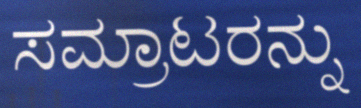
ಸಮ್ರಾಟರನ್ನು